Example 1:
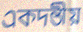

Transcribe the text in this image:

একদন্তীয়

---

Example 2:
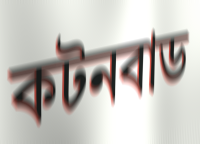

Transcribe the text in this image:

কটনবাড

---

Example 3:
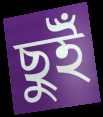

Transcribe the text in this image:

ছুইঁ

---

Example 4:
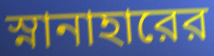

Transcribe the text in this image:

স্নানাহারের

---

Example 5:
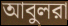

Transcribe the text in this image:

আবুলরা